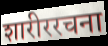
शारीररचना